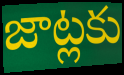
జాట్లకు